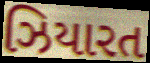
ઝિયારત